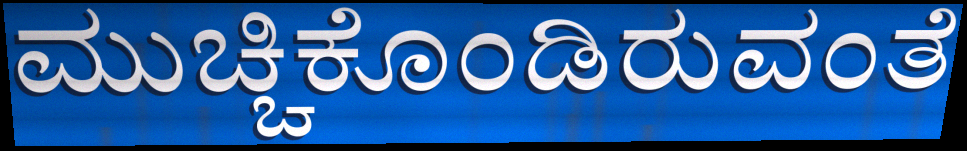
ಮುಚ್ಚಿಕೊಂಡಿರುವಂತೆ